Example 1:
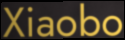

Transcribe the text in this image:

Xiaobo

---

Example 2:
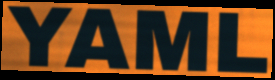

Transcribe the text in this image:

YAML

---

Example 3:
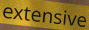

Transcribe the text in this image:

extensive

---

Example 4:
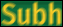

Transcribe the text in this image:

Subh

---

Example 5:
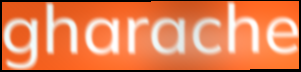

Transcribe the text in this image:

gharache